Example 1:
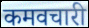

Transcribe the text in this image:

कमवचारी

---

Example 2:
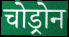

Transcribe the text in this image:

चोड्रोन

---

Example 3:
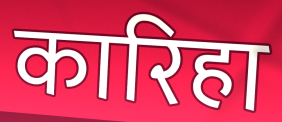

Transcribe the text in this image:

कारिहा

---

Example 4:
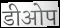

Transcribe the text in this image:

डीओप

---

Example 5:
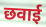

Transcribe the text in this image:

छवाई